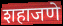
शहाजणे